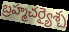
బ్రహ్మచర్యైశ్చ